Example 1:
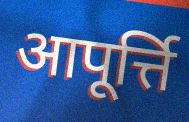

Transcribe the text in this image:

आपूर्त्ति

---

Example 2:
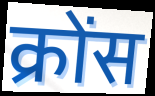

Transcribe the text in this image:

क्रोंस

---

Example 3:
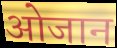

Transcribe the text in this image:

ओजान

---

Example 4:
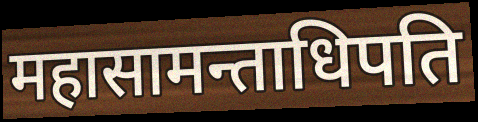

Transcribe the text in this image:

महासामन्ताधिपति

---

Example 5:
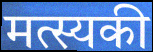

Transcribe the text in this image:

मत्स्यकी